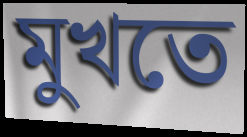
মুখতে